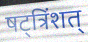
षट्त्रिंशत्